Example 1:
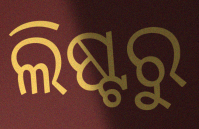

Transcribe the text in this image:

ଲିଷ୍ଟରୁ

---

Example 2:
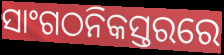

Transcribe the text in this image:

ସାଂଗଠନିକସ୍ତରରେ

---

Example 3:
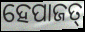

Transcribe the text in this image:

ହେପାଜତ୍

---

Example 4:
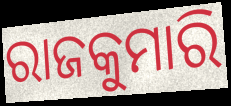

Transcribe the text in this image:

ରାଜକୁମାରି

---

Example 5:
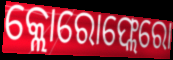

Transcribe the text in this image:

କ୍ଲୋରୋଫ୍ଲେରୋ